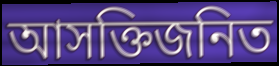
আসক্তিজনিত